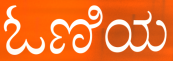
ಓಣಿಯ